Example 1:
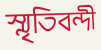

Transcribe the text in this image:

স্মৃতিবন্দী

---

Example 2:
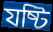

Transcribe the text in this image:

যষ্টি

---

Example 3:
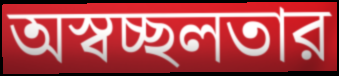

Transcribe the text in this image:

অস্বচ্ছলতার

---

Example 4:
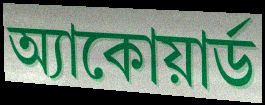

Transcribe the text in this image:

অ্যাকোয়ার্ড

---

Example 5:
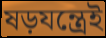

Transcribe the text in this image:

ষড়যন্ত্রেই